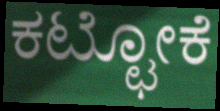
ಕಟ್ಟೋಕೆ